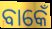
ବାକେଁ